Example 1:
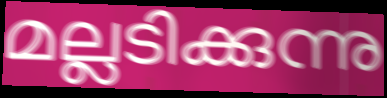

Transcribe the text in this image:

മല്ലടിക്കുന്നു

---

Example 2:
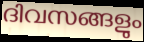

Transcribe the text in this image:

ദിവസങ്ങളും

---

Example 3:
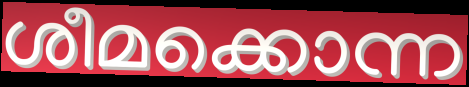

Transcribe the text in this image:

ശീമക്കൊന്ന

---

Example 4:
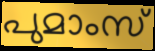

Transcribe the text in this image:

പുമാംസ്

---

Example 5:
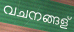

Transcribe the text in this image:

വചനങ്ങള്